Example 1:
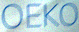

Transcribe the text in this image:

OEKO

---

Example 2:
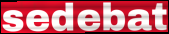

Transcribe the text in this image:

sedebat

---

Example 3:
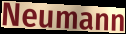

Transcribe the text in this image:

Neumann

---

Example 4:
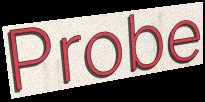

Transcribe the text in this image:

Probe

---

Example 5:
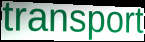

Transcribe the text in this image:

transport